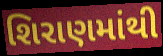
શિરાણમાંથી